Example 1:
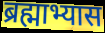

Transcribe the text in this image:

ब्रह्माभ्यास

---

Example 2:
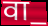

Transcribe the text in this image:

वा॒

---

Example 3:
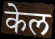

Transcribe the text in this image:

केल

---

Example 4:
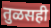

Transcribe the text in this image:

तुळसही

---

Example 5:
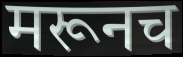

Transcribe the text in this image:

मरूनच